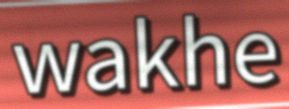
wakhe